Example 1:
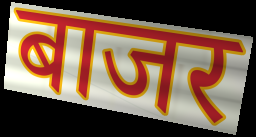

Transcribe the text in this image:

बाजर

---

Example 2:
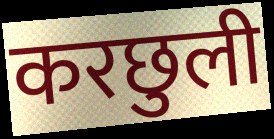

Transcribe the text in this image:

करछुली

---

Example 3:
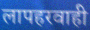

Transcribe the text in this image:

लापहरवाही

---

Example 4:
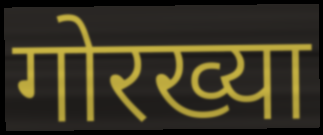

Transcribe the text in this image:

गोरख्या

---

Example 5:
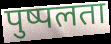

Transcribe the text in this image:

पुष्पलता